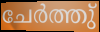
ചേർത്തു്